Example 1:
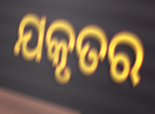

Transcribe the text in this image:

ଯକୃତର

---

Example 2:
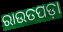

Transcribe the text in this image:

ରାଉତପଡ଼ା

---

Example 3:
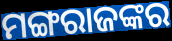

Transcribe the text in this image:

ମଙ୍ଗରାଜଙ୍କର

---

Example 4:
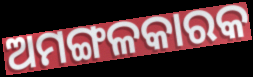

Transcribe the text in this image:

ଅମଙ୍ଗଳକାରକ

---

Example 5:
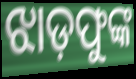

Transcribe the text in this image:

ଝାଡ଼ଫୁଙ୍କ